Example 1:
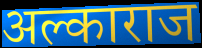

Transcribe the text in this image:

अल्काराज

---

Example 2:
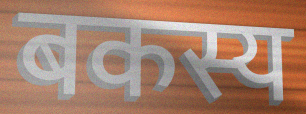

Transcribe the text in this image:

बकस्य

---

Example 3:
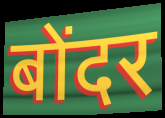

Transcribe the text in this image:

बोंदर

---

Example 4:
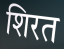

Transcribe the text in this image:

शिरत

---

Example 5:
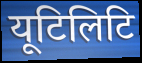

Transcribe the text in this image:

यूटिलिटि